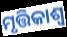
ମୃତ୍ତିକାଶ୍ୱ